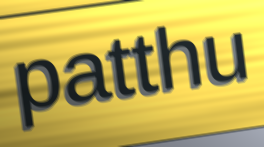
patthu